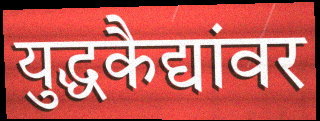
युद्धकैद्यांवर